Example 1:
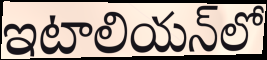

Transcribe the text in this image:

ఇటాలియన్‌లో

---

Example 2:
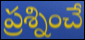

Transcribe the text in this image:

ప్రశ్నించే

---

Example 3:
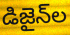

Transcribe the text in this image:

డిజైన్‌ల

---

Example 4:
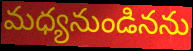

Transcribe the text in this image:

మధ్యనుండినను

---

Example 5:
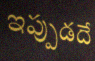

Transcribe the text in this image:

ఇప్పుడదే